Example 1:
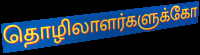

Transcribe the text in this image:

தொழிலாளர்களுக்கோ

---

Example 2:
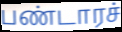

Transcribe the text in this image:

பண்டாரச்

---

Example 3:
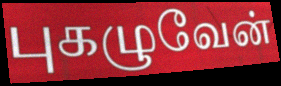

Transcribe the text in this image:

புகழுவேன்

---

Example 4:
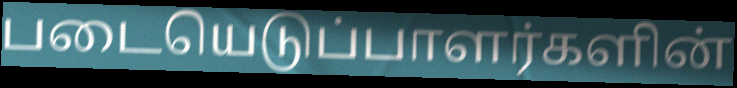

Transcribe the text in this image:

படையெடுப்பாளர்களின்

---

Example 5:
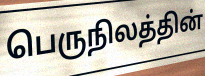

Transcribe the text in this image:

பெருநிலத்தின்